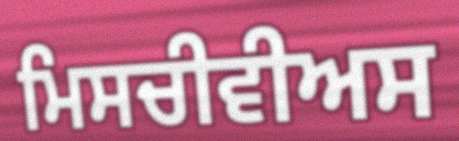
ਮਿਸਚੀਵੀਅਸ